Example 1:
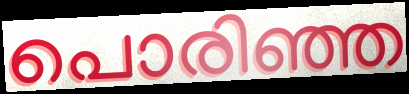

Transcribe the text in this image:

പൊരിഞ്ഞ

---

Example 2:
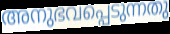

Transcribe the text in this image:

അനുഭവപ്പെടുന്നതു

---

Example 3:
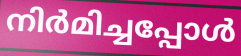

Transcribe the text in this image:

നിർമിച്ചപ്പോൾ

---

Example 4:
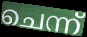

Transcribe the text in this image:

ചെന്ന്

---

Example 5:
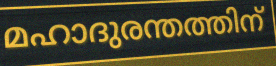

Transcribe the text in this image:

മഹാദുരന്തത്തിന്